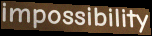
impossibility